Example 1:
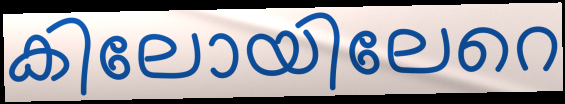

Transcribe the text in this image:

കിലോയിലേറെ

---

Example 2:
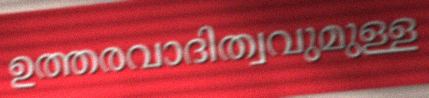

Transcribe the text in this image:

ഉത്തരവാദിത്വവുമുള്ള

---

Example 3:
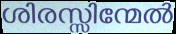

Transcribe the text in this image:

ശിരസ്സിന്മേൽ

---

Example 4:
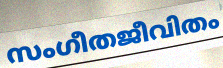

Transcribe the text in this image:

സംഗീതജീവിതം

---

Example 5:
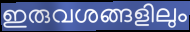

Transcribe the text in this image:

ഇരുവശങ്ങളിലും